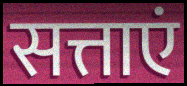
सत्ताएं